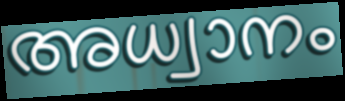
അധ്വാനം